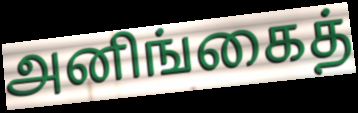
அனிங்கைத்